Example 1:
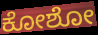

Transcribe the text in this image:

ಕೋಶೋ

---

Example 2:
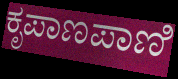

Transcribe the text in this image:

ಕೃಪಾಣಪಾಣಿ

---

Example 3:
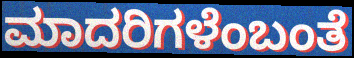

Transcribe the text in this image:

ಮಾದರಿಗಳೆಂಬಂತೆ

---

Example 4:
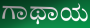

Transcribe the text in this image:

ಗಾಥಾಯ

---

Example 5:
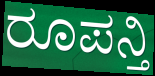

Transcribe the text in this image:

ರೂಪನ್ತಿ